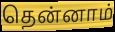
தென்னாம்